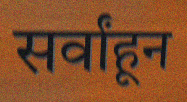
सर्वांहून